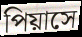
পিয়াসে